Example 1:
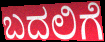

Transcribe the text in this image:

ಬದಲಿಗೆ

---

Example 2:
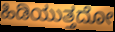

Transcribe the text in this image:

ಹಿಡಿಯುತ್ತದೋ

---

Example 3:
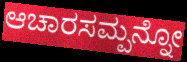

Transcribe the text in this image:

ಆಚಾರಸಮ್ಪನ್ನೋ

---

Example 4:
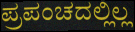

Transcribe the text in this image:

ಪ್ರಪಂಚದಲ್ಲಿಲ್ಲ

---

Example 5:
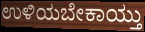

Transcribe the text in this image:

ಉಳಿಯಬೇಕಾಯ್ತು